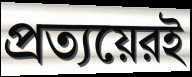
প্রত্যয়েরই